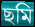
ছমি